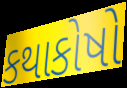
કથાકોષો